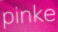
pinke